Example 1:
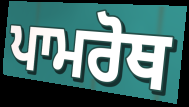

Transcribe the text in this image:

ਪਾਮਰੋਥ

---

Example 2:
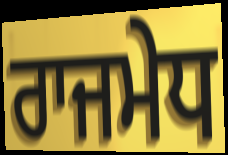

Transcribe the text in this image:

ਰਾਜਮੇਧ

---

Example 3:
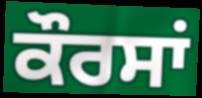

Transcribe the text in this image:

ਕੌਰਸਾਂ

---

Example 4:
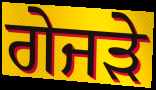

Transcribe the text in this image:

ਗੇਜੜੇ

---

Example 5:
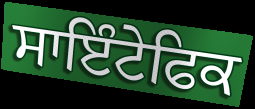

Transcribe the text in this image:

ਸਾਇੰਟੇਫਿਕ